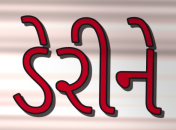
ડેરીને